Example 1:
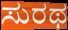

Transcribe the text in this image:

ಸುರಥ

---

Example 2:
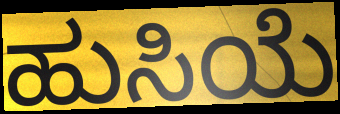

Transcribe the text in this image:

ಹುಸಿಯೆ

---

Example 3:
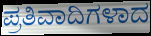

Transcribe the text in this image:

ಪ್ರತಿವಾದಿಗಳಾದ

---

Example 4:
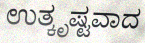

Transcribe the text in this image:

ಉತ್ಕೃಷ್ಟವಾದ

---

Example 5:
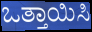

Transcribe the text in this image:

ಒತ್ತಾಯಿಸಿ